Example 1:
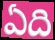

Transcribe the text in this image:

ఏది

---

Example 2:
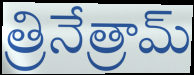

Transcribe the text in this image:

త్రినేత్రామ్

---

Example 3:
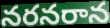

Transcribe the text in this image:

నరనరాన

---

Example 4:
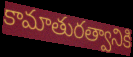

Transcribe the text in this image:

కామాతురత్వానికి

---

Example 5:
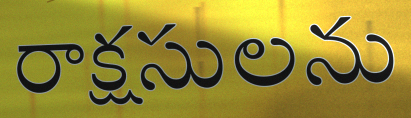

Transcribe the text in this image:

రాక్షసులను